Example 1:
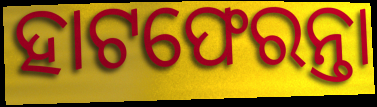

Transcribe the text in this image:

ହାଟଫେରନ୍ତା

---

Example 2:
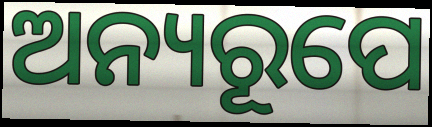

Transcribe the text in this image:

ଅନ୍ୟରୂପେ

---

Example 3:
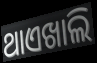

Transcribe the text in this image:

ଥାଏଖାଲି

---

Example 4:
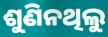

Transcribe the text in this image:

ଶୁଣିନଥିଲୁ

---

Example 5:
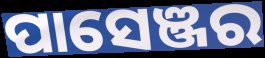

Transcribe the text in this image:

ପାସେଞ୍ଜର